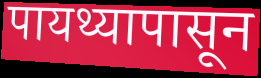
पायथ्यापासून